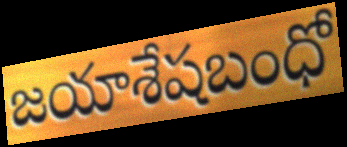
జయాశేషబంధో